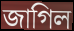
জাগিল